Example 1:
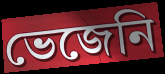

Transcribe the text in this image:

ভেজেনি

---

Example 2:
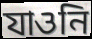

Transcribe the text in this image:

যাওনি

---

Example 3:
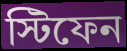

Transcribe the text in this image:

স্টিফেন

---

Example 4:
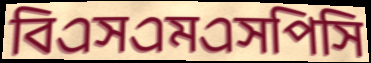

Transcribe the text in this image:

বিএসএমএসপিসি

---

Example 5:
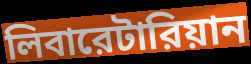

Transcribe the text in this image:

লিবারেটারিয়ান